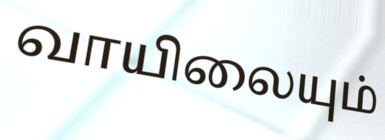
வாயிலையும்